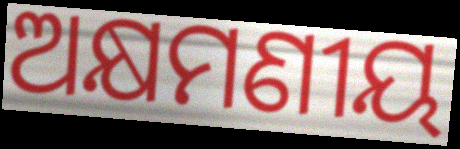
ଅକ୍ଷମଣୀୟ